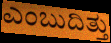
ಎಂಬುದಿತ್ತು